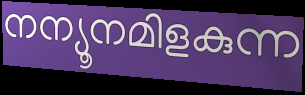
നന്യൂനമിളകുന്ന